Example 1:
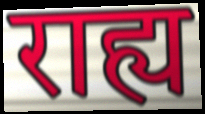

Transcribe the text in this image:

राह्य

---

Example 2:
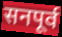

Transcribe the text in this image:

सनपूर्व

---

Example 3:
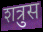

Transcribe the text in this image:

शत्रुस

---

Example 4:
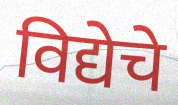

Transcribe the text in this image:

विद्येचे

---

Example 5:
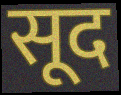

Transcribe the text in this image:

सूद